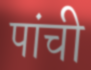
पांची